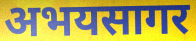
अभयसागर